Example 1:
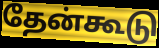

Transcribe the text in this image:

தேன்கூடு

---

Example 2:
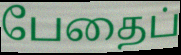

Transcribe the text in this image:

பேதைப்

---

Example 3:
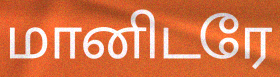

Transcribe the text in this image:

மானிடரே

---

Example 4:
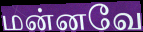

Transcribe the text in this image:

மன்னவே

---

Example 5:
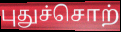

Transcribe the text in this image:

புதுச்சொற்